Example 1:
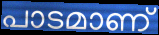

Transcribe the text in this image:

പാടമാണ്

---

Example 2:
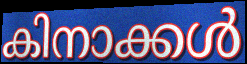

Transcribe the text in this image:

കിനാക്കൾ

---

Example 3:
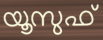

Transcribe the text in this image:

യൂസുഫ്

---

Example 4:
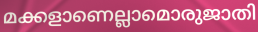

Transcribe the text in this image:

മക്കളാണെല്ലാമൊരുജാതി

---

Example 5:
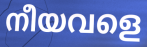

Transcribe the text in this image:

നീയവളെ